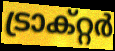
ട്രാക്റ്റർ